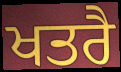
ਖਤਰੈ